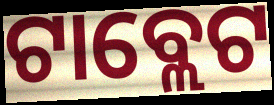
ଟାବ୍ଲେଟ